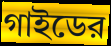
গাইডের